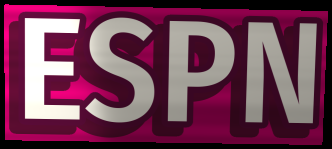
ESPN